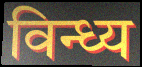
विन्ध्य